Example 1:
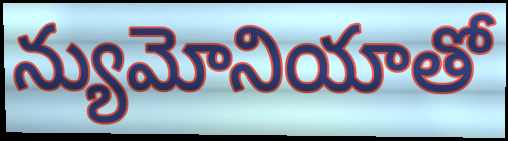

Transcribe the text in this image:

న్యుమోనియాతో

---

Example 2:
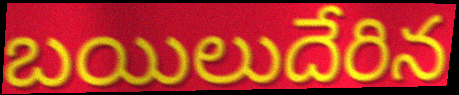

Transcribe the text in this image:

బయిలుదేరిన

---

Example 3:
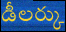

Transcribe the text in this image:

డీలర్కు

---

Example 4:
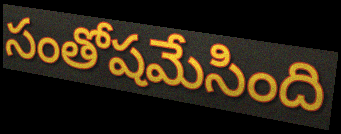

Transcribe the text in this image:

సంతోషమేసింది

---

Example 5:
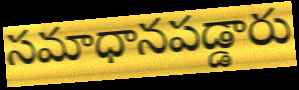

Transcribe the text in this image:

సమాధానపడ్డారు